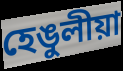
হেঙুলীয়া